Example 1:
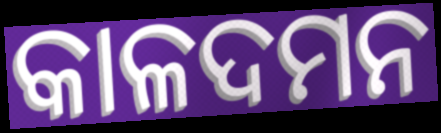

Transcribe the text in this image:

କାଳଦମନ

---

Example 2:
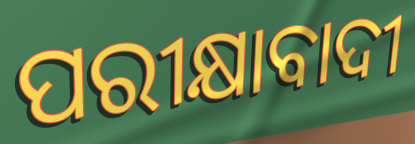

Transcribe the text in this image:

ପରୀକ୍ଷାବାଦୀ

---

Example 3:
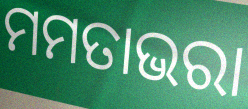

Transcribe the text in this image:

ମମତାଭରା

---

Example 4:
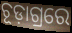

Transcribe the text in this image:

ଚୂଡ଼ାଗ୍ରରେ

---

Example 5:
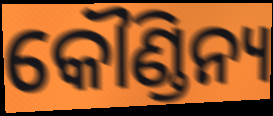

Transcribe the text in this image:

କୌଣ୍ଡିନ୍ୟ